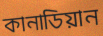
কানাডিয়ান